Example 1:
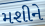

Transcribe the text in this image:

મશીને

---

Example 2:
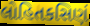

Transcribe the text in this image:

લોહિતકસિણં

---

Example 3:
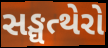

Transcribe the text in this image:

સઙ્ઘત્થેરો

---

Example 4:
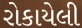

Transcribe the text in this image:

રોકાયેલી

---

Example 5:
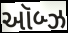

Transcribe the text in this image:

ઑબ્ઝ